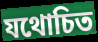
যথোচিত